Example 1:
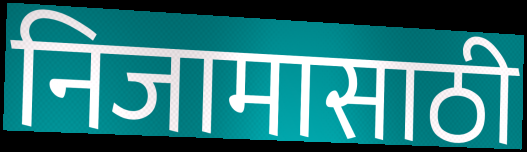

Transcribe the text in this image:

निजामासाठी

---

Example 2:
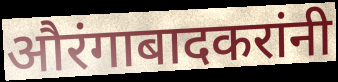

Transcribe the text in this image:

औरंगाबादकरांनी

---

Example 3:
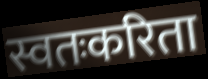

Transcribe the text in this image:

स्वतःकरिता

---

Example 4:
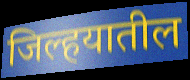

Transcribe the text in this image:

जिल्हयातील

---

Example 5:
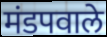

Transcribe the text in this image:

मंडपवाले